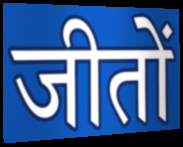
जीतों